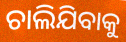
ଚାଲିଯିବାକୁ